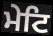
ਮੇਟਿ